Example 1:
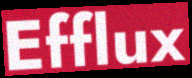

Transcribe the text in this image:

Efflux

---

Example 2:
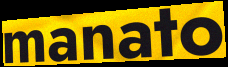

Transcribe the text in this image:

manato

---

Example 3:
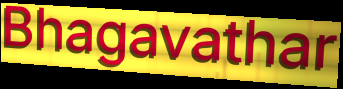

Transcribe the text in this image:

Bhagavathar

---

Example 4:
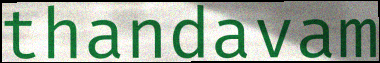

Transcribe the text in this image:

thandavam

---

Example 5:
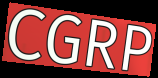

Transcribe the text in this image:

CGRP